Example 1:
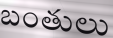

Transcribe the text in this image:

బంతులు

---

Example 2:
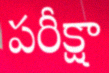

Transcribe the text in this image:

పరీక్షా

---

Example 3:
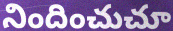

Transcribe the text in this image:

నిందించుచూ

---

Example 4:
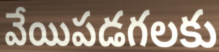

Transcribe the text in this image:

వేయిపడగలకు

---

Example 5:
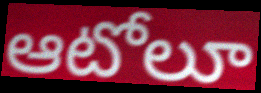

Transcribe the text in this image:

ఆటోలూ